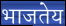
भाजतेय